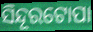
ସିନ୍ଦୂରଟୋପା